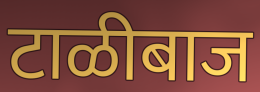
टाळीबाज